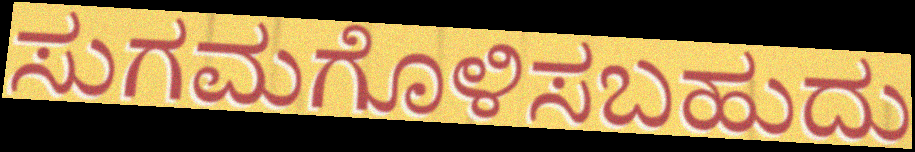
ಸುಗಮಗೊಳಿಸಬಹುದು